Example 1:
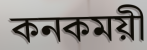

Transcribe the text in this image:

কনকময়ী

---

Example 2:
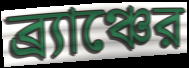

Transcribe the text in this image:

ব্র্যাঞ্চের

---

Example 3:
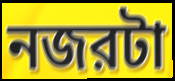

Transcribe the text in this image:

নজরটা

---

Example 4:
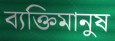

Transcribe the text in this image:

ব্যক্তিমানুষ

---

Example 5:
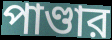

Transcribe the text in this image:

পাণ্ডার